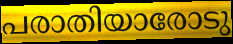
പരാതിയാരോടു